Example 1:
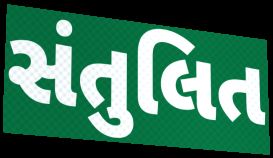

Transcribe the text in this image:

સંતુલિત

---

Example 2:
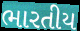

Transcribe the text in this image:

ભારતીય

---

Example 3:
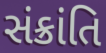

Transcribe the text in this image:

સંક્રાંતિ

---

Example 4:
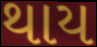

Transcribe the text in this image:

થાય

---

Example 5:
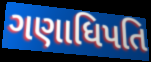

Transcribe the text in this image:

ગણાધિપતિ